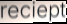
reciept